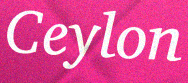
Ceylon